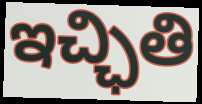
ఇచ్ఛితి